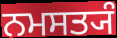
ਨਮਸਤ੍ਯੰ